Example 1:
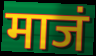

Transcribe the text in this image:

माजं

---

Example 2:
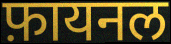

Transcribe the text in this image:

फ़ायनल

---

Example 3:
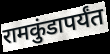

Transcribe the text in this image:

रामकुंडापर्यंत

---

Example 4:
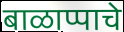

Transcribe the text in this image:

बाळाप्पाचे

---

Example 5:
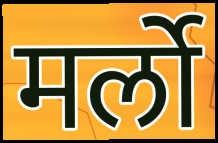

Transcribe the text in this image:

मर्लो